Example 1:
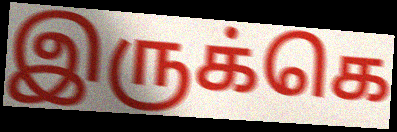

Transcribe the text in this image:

இருக்கெ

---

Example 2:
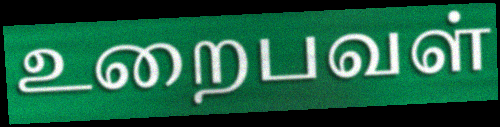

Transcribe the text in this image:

உறைபவள்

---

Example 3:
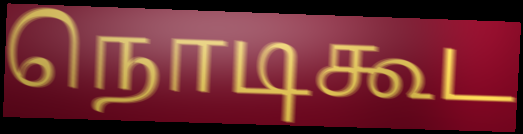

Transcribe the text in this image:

நொடிகூட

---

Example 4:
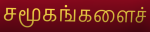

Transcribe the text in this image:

சமூகங்களைச்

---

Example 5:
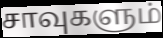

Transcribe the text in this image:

சாவுகளும்